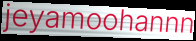
jeyamoohannn